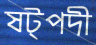
ষট্‌পদী